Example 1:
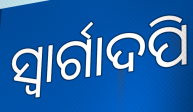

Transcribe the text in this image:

ସ୍ୱାର୍ଗାଦପି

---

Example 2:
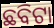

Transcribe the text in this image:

ଛବିଟା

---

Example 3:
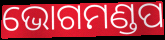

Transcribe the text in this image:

ଭୋଗମଣ୍ଡପ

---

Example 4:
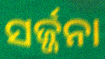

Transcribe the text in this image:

ସର୍ଜ୍ଜନା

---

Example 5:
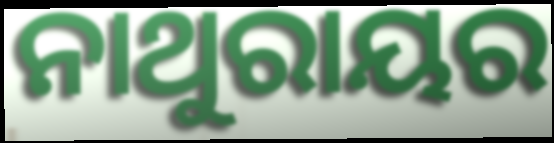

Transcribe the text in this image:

ନାଥୁରାୟର